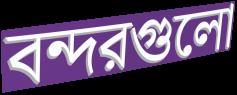
বন্দরগুলো